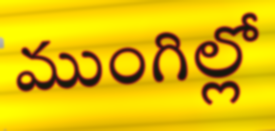
ముంగిల్లో